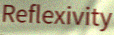
Reflexivity